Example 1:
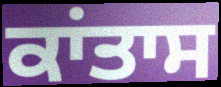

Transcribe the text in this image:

ਕਾਂਤਾਸ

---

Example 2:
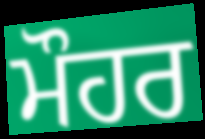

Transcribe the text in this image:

ਮੌਹਰ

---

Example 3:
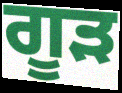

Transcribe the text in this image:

ਗੂੜ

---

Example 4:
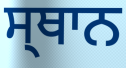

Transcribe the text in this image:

ਸ੍ਥਾਨ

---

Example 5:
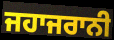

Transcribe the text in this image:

ਜਹਾਜਰਾਨੀ